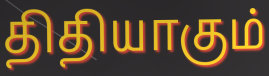
திதியாகும்